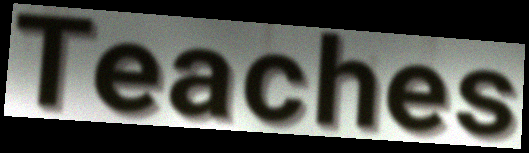
Teaches